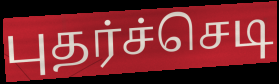
புதர்ச்செடி